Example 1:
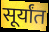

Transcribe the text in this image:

सूर्यांत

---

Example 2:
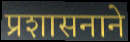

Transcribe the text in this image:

प्रशासनाने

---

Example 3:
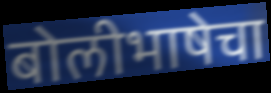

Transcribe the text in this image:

बोलीभाषेचा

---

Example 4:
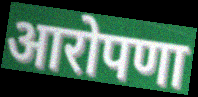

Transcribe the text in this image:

आरोपणा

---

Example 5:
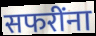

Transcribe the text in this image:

सफरींना